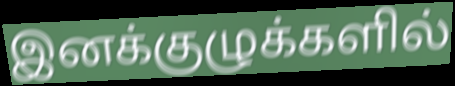
இனக்குழுக்களில்